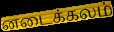
னடைக்கலம்